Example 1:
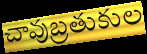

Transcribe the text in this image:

చావుబ్రతుకుల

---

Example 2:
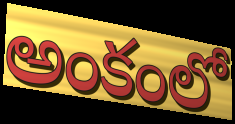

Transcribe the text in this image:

అంకంలో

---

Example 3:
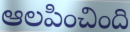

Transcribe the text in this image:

ఆలపించింది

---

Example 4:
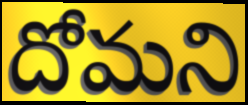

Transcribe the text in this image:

దోమని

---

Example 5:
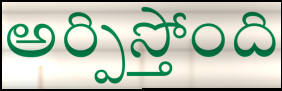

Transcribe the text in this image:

అర్పిస్తోంది